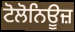
ਟੋਲੋਨਿਊਜ਼